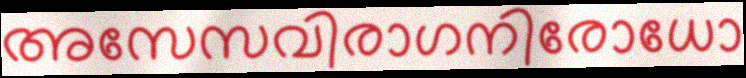
അസേസവിരാഗനിരോധോ